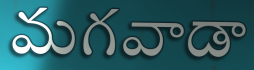
మగవాడా